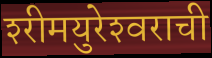
श्रीमयुरेश्वराची